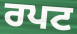
ਰਪਟ